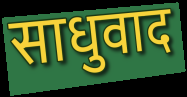
साधुवाद